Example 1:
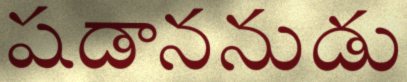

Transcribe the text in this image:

షడాననుడు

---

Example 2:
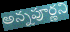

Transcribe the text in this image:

అన్నపూర్ణని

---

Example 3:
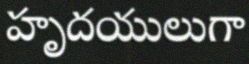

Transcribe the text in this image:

హృదయులుగా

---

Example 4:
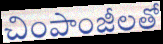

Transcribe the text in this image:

చింపాంజీలతో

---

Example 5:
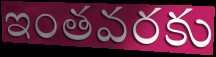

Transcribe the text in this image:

ఇంతవరకు